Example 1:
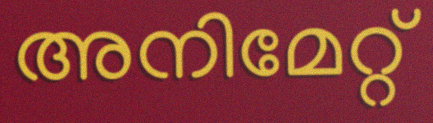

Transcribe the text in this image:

അനിമേറ്റ്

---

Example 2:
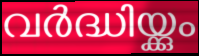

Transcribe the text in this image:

വർദ്ധിയ്ക്കും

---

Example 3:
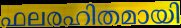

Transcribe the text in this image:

ഫലരഹിതമായി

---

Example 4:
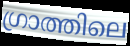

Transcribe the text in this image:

ഗ്രാത്തിലെ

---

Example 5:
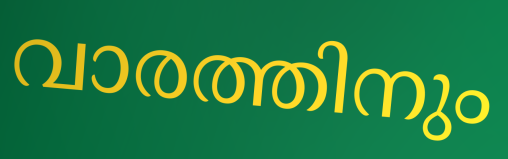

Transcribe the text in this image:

വാരത്തിനും